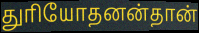
துரியோதனன்தான்